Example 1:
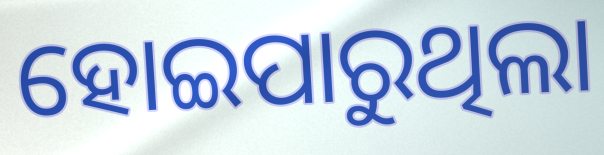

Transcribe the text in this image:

ହୋଇପାରୁଥିଲା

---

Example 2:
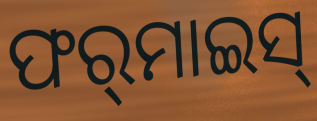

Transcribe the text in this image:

ଫର୍‌ମାଇସ୍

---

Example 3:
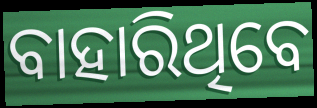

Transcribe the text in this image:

ବାହାରିଥିବେ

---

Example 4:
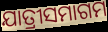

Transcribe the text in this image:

ଯାତ୍ରୀସମାଗମ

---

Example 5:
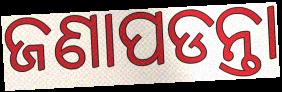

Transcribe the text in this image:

ଜଣାପଡନ୍ତା